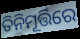
ତିନିମୂର୍ତ୍ତିରେ